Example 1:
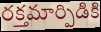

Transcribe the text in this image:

రక్తమార్పిడికి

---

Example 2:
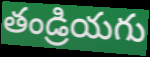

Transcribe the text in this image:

తండ్రియగు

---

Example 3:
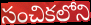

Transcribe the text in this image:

సంచికలోని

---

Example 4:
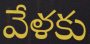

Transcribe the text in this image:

వేళకు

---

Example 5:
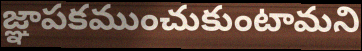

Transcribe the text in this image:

జ్ఞాపకముంచుకుంటామని